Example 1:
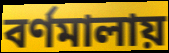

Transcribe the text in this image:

বর্ণমালায়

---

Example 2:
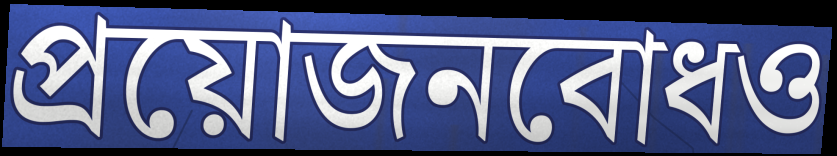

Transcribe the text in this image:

প্রয়োজনবোধও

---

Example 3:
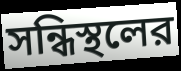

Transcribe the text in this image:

সন্ধিস্থলের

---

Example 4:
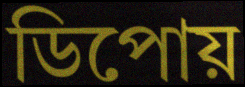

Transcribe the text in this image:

ডিপোয়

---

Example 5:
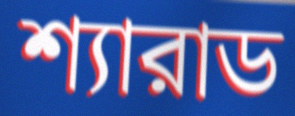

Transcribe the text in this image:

শ্যারাড